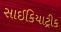
સાઈકિયાટ્રીક